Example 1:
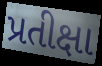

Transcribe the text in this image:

પ્રતીક્ષા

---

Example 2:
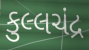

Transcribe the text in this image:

કુલ્લચંદ્ર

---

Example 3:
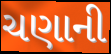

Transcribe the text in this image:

ચણાની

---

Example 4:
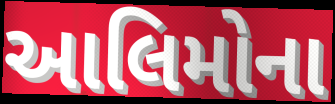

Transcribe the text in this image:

આલિમોના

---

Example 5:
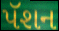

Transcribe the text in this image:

પૅશન